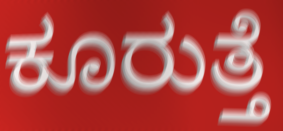
ಕೂರುತ್ತೆ